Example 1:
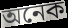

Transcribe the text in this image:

অনেক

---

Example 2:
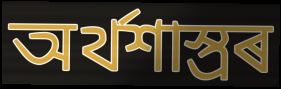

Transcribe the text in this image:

অৰ্থশাস্ত্ৰৰ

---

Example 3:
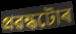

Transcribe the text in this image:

প্ৰৱন্ধটোৰ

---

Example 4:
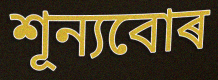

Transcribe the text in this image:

শূন্যবোৰ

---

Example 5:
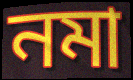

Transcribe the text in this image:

নমা